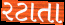
રટાતા